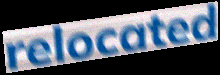
relocated